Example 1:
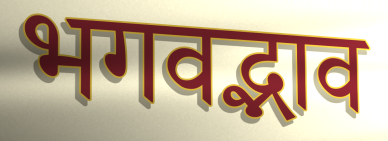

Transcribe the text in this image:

भगवद्भाव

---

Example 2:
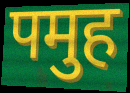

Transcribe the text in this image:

पमुह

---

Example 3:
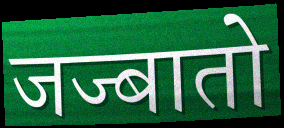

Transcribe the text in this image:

जज्बातो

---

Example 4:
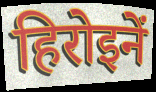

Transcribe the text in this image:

हिरोइनें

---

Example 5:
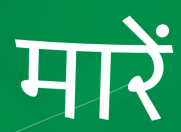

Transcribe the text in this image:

मारें